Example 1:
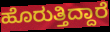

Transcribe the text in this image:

ಹೊರುತ್ತಿದ್ದಾರೆ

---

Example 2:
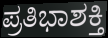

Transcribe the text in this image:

ಪ್ರತಿಭಾಶಕ್ತಿ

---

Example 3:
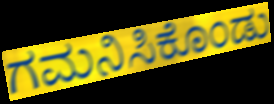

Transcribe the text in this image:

ಗಮನಿಸಿಕೊಂಡು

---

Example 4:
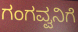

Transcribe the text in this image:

ಗಂಗವ್ವನಿಗೆ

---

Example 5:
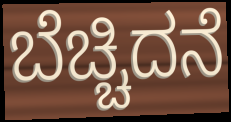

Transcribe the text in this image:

ಬೆಚ್ಚಿದನೆ